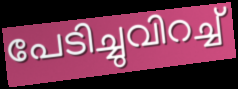
പേടിച്ചുവിറച്ച്